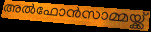
അൽഫോൻസാമ്മയ്ക്ക്